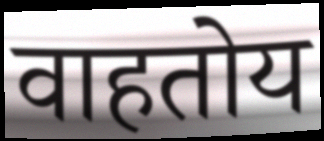
वाहतोय